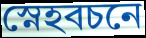
স্নেহবচনে